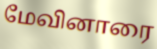
மேவினாரை